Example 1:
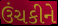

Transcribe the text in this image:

ઉંચકીને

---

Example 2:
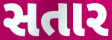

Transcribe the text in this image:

સતાર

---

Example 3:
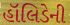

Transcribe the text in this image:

હૉલિડેની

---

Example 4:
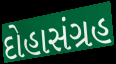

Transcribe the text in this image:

દોહાસંગ્રહ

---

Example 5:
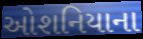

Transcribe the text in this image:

ઓશનિયાના